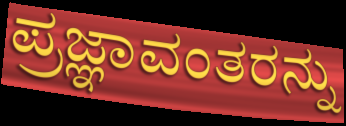
ಪ್ರಜ್ಞಾವಂತರನ್ನು